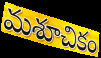
మశూచికం